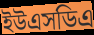
ইউএসডিএ